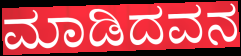
ಮಾಡಿದವನ